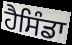
ਹੈਸਿੰਡਾ